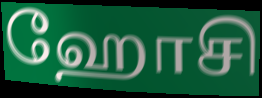
ஹோசி